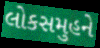
લોકસમુહને